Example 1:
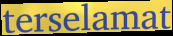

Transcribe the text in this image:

terselamat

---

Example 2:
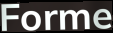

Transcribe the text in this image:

Forme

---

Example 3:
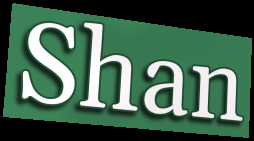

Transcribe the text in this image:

Shan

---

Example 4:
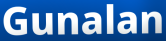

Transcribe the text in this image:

Gunalan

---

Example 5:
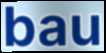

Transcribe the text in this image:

bau